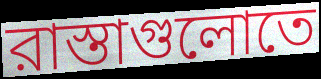
রাস্তাগুলোতে